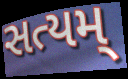
સત્યમ્